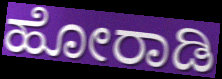
ಹೋರಾಡಿ